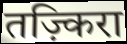
तज़्किरा